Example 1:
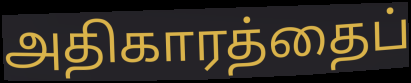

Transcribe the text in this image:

அதிகாரத்தைப்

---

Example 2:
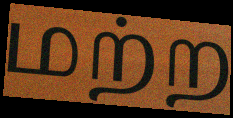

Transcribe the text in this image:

மற்ற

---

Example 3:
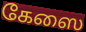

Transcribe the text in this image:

கேஸை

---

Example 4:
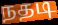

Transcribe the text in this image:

நதடி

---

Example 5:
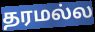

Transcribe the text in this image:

தரமல்ல